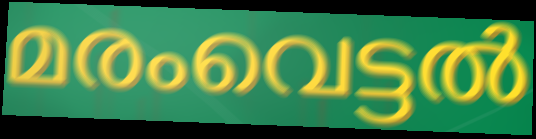
മരംവെട്ടൽ